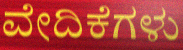
ವೇದಿಕೆಗಳು